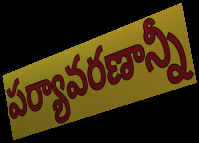
పర్యావరణాన్నీ